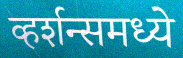
व्हर्शन्समध्ये